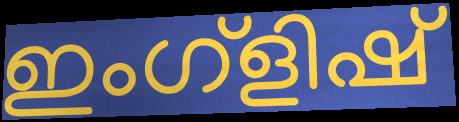
ഇംഗ്ളിഷ്